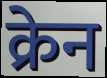
क्रेन